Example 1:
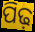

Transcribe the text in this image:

ପିଢ଼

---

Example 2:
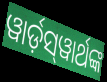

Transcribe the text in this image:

ୱାର୍ଡ଼ସ୍‌ୱାର୍ଥଙ୍କ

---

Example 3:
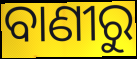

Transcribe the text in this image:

ବାଣୀରୁ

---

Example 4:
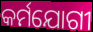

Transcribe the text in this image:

କର୍ମଯୋଗୀ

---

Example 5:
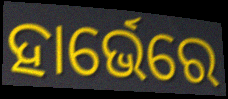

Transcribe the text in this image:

ହାର୍ଭେରେ